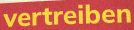
vertreiben